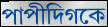
পাপীদিগকে